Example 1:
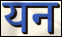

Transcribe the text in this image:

यन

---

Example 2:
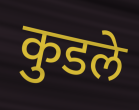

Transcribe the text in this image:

कुडले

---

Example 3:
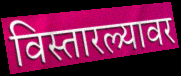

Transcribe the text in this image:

विस्तारल्यावर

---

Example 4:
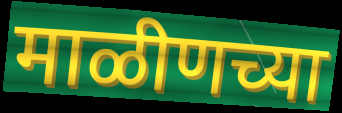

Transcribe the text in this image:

माळीणच्या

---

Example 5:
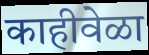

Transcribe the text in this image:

काहीवेळा